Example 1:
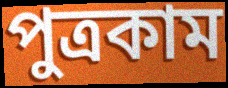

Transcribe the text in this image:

পুত্রকাম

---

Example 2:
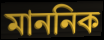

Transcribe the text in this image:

মাননিক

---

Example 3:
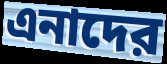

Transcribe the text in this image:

এনাদের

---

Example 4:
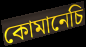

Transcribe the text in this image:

কোমানেচি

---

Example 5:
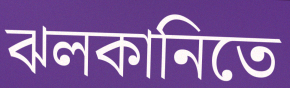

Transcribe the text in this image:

ঝলকানিতে